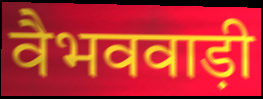
वैभववाड़ी